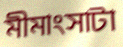
মীমাংসাটা